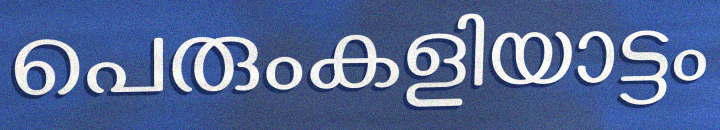
പെരുംകളിയാട്ടം